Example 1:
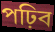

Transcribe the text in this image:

পঢ়িব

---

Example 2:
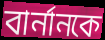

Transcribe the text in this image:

বাৰ্নানকে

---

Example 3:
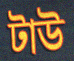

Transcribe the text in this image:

টাউ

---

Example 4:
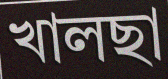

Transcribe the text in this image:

খালছা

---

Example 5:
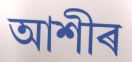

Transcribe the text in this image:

আশীৰ